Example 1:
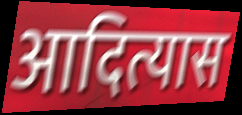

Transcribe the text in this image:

आदित्यास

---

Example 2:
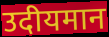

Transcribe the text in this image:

उदीयमान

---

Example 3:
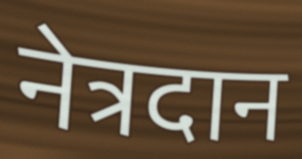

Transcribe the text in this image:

नेत्रदान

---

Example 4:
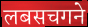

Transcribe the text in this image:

लबसचगने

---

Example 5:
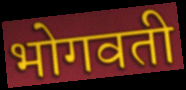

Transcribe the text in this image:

भोगवती